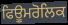
ਫਿਊਮਰੋਲਿਕ